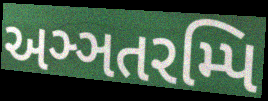
અઞ્ઞતરમ્પિ